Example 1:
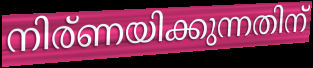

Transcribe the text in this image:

നിര്ണയിക്കുന്നതിന്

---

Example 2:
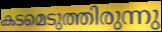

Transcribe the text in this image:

കടമെടുത്തിരുന്നു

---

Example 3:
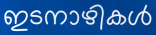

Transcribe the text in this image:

ഇടനാഴികൾ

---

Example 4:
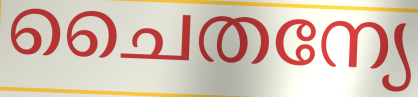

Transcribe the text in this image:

ചൈതന്യേ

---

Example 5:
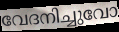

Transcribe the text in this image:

വേദനിച്ചുവോ